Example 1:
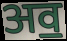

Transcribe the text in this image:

अव॒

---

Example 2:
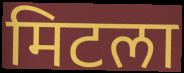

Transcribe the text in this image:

मिटला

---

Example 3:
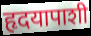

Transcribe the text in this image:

हृदयापाशी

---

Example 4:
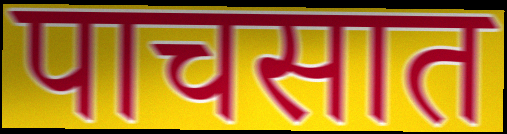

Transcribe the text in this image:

पाचसात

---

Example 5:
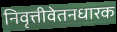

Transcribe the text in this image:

निवृत्तीवेतनधारक